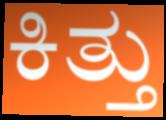
ಕಿತ್ತು